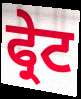
ਫ੍ਰੇਟ